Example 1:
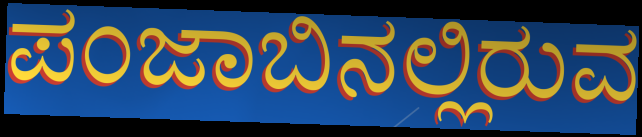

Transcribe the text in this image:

ಪಂಜಾಬಿನಲ್ಲಿರುವ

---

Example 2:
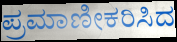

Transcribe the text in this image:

ಪ್ರಮಾಣೀಕರಿಸಿದ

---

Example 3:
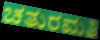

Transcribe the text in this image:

ಚತುರಮತಿ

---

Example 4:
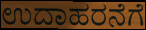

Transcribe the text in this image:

ಉದಾಹರನೆಗೆ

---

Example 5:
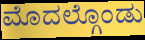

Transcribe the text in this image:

ಮೊದಲ್ಗೊಂಡು